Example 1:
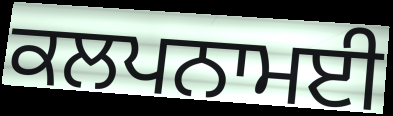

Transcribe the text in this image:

ਕਲਪਨਾਮਈ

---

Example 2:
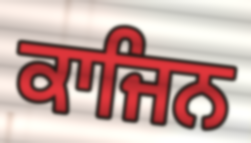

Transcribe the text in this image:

ਕਾਜਿਨ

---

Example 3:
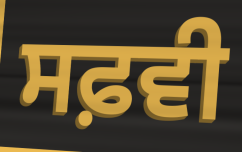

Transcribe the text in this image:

ਸਫ਼ਵੀ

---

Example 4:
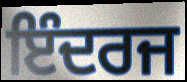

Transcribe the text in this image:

ਇੰਦਰਜ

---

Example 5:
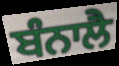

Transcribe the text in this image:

ਬੰਨਾਲੈ